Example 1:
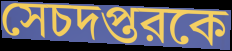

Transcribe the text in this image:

সেচদপ্তরকে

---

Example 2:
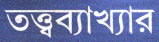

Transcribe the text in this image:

তত্ত্বব্যাখ্যার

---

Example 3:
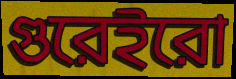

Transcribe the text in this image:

গুরেইরো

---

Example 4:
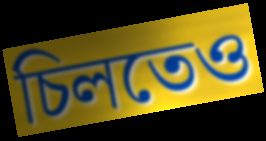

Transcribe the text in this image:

চিলতেও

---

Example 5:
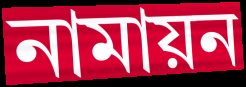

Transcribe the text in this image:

নামায়ন